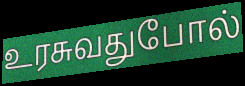
உரசுவதுபோல்